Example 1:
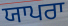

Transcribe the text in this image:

ਯਾਪਰਾ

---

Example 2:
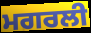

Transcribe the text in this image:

ਮਗਰਲੀ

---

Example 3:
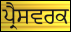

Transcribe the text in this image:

ਪ੍ਰੈਸਵਰਕ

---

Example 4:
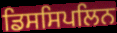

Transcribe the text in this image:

ਡਿਸਸਿਪਲਿਨ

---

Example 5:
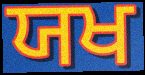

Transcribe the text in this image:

ਯਖ